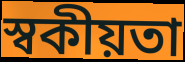
স্বকীয়তা